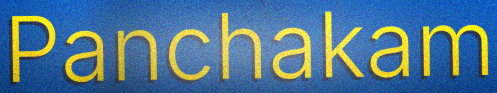
Panchakam